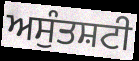
ਅਸੁੰਤਸ਼ਟੀ